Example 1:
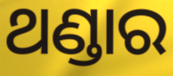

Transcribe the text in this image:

ଥଣ୍ଡାର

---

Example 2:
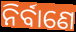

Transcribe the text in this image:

ନିର୍ବାଣେ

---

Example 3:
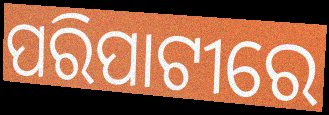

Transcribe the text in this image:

ପରିପାଟୀରେ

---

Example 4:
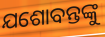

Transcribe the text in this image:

ଯଶୋବନ୍ତଙ୍କୁ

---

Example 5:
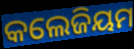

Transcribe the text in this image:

କଲେଜିୟମ